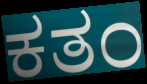
ಕತಂ